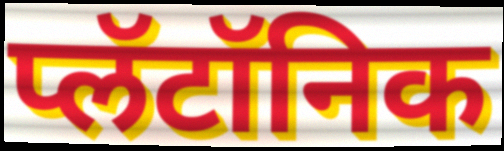
प्लॅटॉनिक